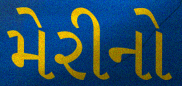
મેરીનો